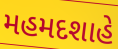
મહમદશાહે